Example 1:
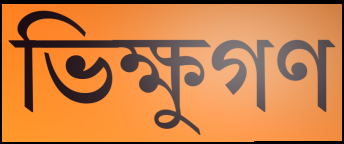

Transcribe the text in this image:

ভিক্ষুগণ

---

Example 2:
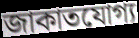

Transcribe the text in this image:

জাকাতযোগ্য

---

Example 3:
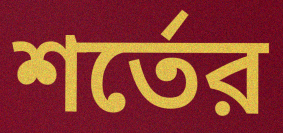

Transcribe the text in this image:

শর্তের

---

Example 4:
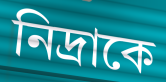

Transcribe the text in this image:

নিদ্রাকে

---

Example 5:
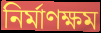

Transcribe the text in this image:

নির্মাণক্ষম